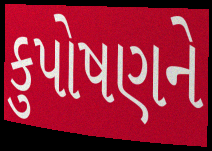
કુપોષણને